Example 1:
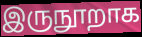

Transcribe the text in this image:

இருநூறாக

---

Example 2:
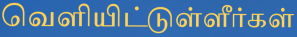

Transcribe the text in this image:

வெளியிட்டுள்ளீர்கள்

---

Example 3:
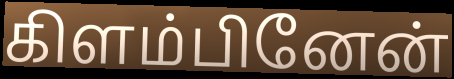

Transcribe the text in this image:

கிளம்பினேன்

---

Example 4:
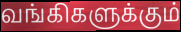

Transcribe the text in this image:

வங்கிகளுக்கும்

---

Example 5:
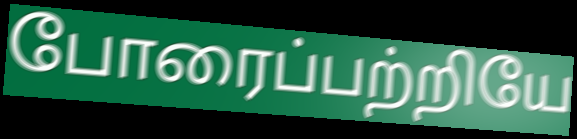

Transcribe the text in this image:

போரைப்பற்றியே